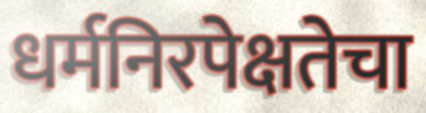
धर्मनिरपेक्षतेचा